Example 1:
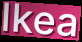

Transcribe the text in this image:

Ikea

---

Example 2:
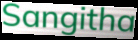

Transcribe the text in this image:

Sangitha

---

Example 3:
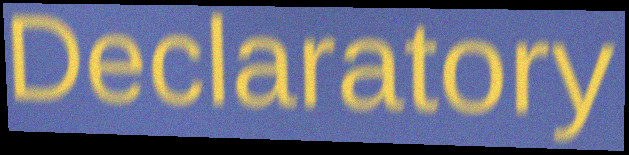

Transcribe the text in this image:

Declaratory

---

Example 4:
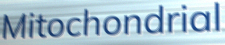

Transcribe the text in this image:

Mitochondrial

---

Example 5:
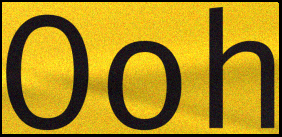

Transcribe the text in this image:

Ooh